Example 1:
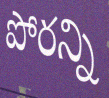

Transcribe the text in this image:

పోరన్ని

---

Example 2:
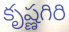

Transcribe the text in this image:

కృష్ణగిరి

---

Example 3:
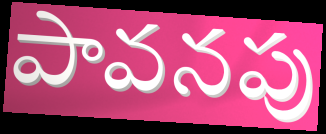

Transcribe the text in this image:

పావనపు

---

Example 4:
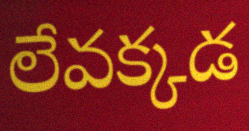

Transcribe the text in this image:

లేవక్కడ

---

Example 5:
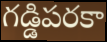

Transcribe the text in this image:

గడ్డిపరకా